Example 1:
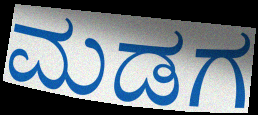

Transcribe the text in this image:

ಮಡಗ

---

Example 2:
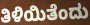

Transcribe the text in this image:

ತಿಳಿಯಿತೆಂದು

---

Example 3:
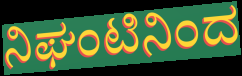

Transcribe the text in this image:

ನಿಘಂಟಿನಿಂದ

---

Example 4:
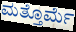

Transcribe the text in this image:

ಮತ್ತೊರ್ಮೆ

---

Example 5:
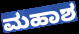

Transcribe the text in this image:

ಮಹಾಶ